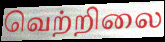
வெற்றிலை